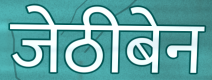
जेठीबेन